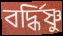
বর্দ্ধিষ্ণু